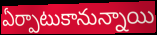
ఏర్పాటుకానున్నాయి